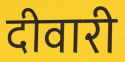
दीवारी